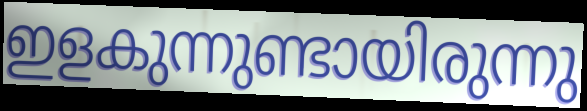
ഇളകുന്നുണ്ടായിരുന്നു